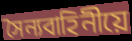
সৈন্যবাহিনীয়ে